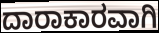
ದಾರಾಕಾರವಾಗಿ